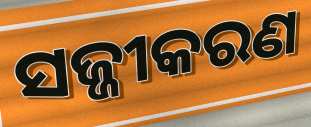
ସଜ୍ଜୀକରଣ